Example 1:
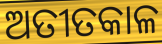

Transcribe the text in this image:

ଅତୀତକାଳ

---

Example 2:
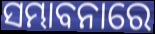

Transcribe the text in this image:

ସମ୍ଭାବନାରେ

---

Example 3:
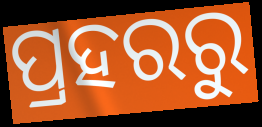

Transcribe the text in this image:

ପ୍ରହରରୁ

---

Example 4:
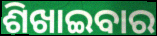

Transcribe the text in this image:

ଶିଖାଇବାର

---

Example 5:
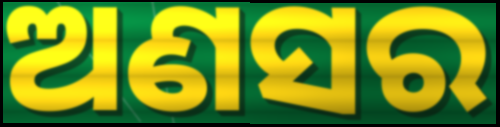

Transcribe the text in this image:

ଅଣସର